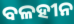
ବଳହୀନ